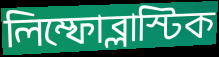
লিম্ফোব্লাস্টিক